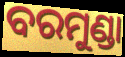
ବରମୁଣ୍ଡା